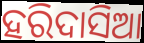
ହରିଦାସିଆ